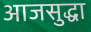
आजसुद्धा